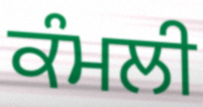
ਕੰਮਲੀ